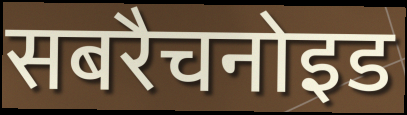
सबरैचनोइड